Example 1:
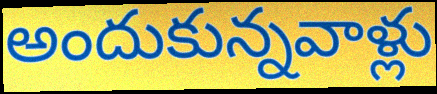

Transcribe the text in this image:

అందుకున్నవాళ్లు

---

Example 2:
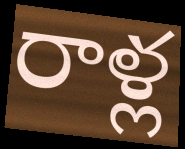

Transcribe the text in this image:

రాళ్ల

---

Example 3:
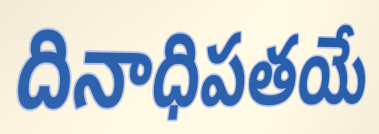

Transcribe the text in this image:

దినాధిపతయే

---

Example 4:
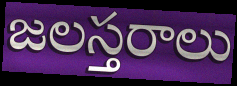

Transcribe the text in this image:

జలస్తరాలు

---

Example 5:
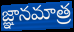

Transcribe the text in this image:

జ్ఞానమాత్ర